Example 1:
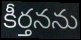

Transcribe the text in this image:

కీర్తనను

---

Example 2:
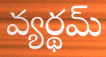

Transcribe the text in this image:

వ్యర్థమ్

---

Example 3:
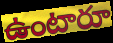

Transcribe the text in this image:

ఉంటారూ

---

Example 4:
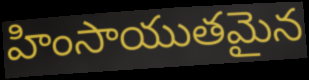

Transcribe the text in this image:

హింసాయుతమైన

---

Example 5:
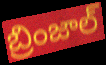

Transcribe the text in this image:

బ్రింజాల్